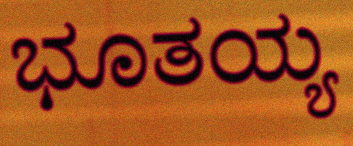
ಭೂತಯ್ಯ